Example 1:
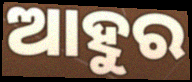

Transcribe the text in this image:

ଆହୁର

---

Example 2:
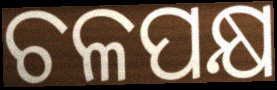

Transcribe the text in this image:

ଚଳପକ୍ଷ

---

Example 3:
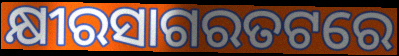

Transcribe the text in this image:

କ୍ଷୀରସାଗରତଟରେ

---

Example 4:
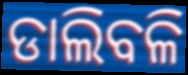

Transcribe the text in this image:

ଡାଲିବଳି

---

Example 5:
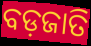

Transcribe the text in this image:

ବଡ଼ଜାତି